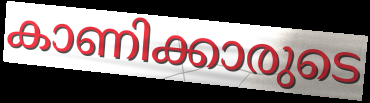
കാണിക്കാരുടെ